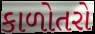
કાળોતરો